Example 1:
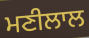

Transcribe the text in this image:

ਮਣੀਲਾਲ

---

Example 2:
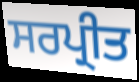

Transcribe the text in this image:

ਸਰਪ੍ਰੀਤ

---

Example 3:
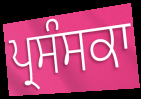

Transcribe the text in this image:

ਪ੍ਰਸੰਸਕਾ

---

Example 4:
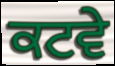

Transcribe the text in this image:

ਕਟਵੇ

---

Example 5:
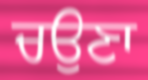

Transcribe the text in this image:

ਚਉਣਾ